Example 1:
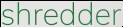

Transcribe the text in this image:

shredder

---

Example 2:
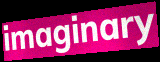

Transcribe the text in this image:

imaginary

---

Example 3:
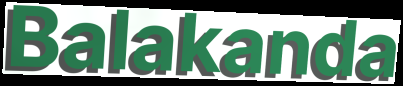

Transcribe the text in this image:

Balakanda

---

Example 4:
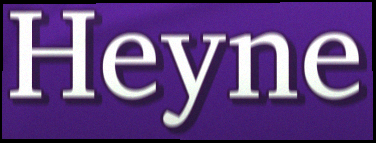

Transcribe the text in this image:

Heyne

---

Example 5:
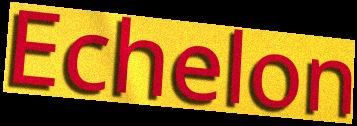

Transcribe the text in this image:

Echelon